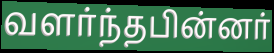
வளர்ந்தபின்னர்